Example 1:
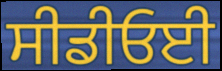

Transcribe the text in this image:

ਸੀਡੀਓਈ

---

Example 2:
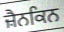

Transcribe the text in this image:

ਜ਼ੈਨਕਿਨ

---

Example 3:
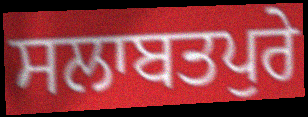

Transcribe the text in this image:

ਸਲਾਬਤਪੁਰੇ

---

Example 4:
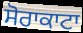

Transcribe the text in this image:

ਸੋਰਾਕਾਟਾ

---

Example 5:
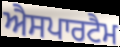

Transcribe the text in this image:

ਐਸਪਾਰਟੈਮ